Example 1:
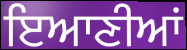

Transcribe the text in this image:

ਇਆਣੀਆਂ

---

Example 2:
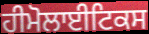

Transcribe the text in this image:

ਹੀਮੋਲਾਈਟਿਕਸ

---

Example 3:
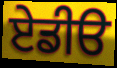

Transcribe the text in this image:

ਏਡੀੳ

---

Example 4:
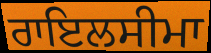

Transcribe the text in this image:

ਰਾਇਲਸੀਮਾ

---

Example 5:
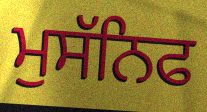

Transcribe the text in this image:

ਮੁਸੱਨਿਫ